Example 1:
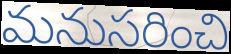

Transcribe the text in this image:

మనుసరించి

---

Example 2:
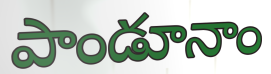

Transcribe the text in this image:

పాండూనాం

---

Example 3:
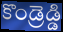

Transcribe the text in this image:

కొండ్రెడ్డి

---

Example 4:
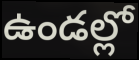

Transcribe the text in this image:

ఉండల్లో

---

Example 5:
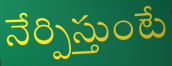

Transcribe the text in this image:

నేర్పిస్తుంటే